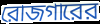
রোজগারের